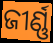
ଜୀର୍ଣ୍ଣ